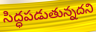
సిద్ధపడుతున్నదని